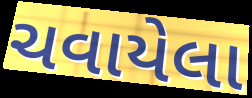
ચવાયેલા